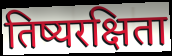
तिष्यरक्षिता